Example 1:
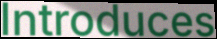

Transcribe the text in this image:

Introduces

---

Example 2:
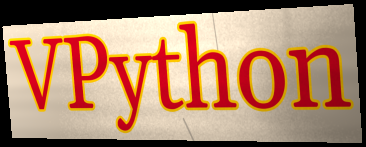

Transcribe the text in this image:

VPython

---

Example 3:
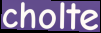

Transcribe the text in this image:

cholte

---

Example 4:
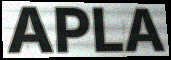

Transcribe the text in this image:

APLA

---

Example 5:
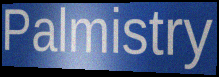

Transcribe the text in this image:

Palmistry